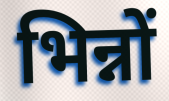
भिन्नों